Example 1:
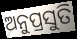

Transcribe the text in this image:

ଅନୁପ୍ରସୁତି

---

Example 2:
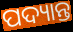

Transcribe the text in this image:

ପଦ୍ୟାନ୍ତ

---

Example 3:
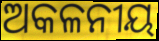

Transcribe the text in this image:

ଅକଳନୀୟ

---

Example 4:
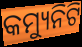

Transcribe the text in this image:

କମ୍ୟୁନିଟି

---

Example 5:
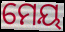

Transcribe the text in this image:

ମେୟ